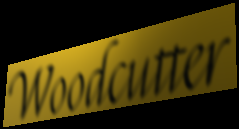
Woodcutter